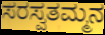
ಸರಸ್ವತಮ್ಮನ